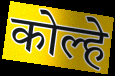
कोल्हे